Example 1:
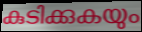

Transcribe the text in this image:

കുടിക്കുകയും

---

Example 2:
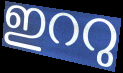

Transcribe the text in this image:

ഇററു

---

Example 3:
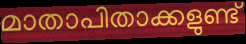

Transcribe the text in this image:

മാതാപിതാക്കളുണ്ട്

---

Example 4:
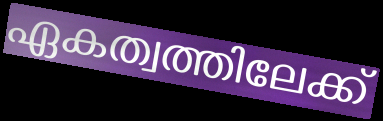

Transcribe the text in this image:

ഏകത്വത്തിലേക്ക്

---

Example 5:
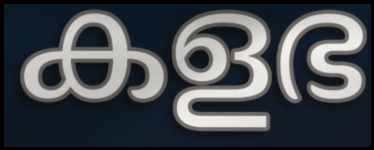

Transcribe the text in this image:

കളഭ